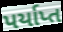
પર્યાપ્ત